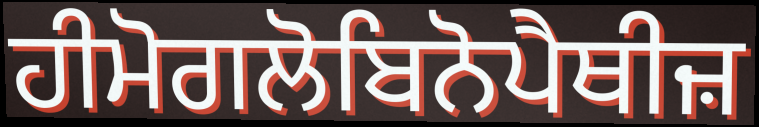
ਹੀਮੋਗਲੋਬਿਨੋਪੈਥੀਜ਼